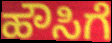
ಹೌಸಿಗೆ